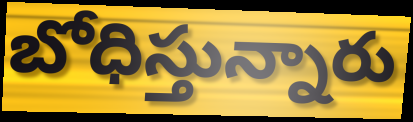
బోధిస్తున్నారు